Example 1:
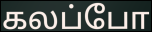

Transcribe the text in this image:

கலப்போ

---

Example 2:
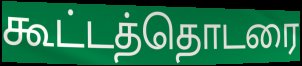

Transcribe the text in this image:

கூட்டத்தொடரை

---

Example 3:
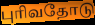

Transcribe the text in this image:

புரிவதோடு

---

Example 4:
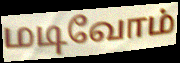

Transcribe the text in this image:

மடிவோம்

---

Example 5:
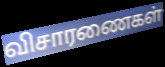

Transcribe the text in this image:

விசாரணைகள்